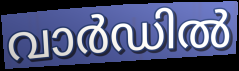
വാർഡിൽ